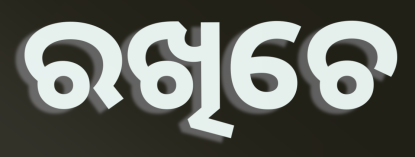
ରଖିଚେ